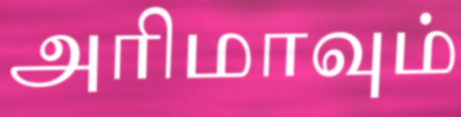
அரிமாவும்